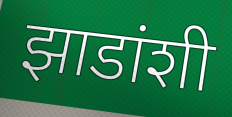
झाडांशी